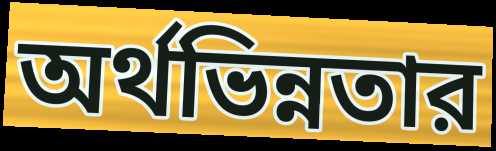
অর্থভিন্নতার